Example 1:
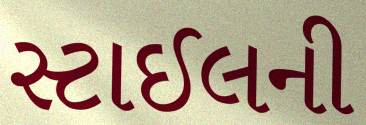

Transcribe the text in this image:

સ્ટાઈલની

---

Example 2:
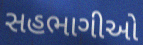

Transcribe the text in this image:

સહભાગીઓ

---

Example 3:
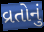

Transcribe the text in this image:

વ્રતોનું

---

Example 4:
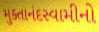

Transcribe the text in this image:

મુક્તાનંદસ્વામીનો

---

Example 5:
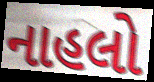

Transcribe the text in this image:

નાહલો